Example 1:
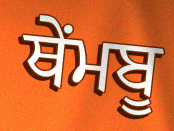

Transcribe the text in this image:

ਥੇਂਮਬੂ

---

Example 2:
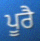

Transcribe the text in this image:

ਪੂਰੈ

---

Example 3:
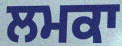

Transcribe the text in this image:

ਲਮਕਾ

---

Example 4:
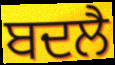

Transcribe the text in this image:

ਬਦਲੈ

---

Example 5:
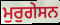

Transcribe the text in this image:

ਮੁਰੁਗੇਸਨ